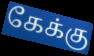
கேக்கு